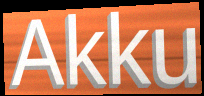
Akku